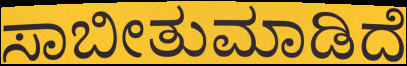
ಸಾಬೀತುಮಾಡಿದೆ